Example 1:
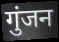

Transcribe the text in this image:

गुंजन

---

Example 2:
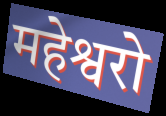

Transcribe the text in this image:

महेश्वरो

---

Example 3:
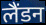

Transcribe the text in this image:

लैंडन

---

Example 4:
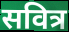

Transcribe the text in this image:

सवित्र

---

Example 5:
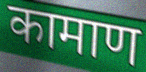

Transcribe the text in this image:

कामाण